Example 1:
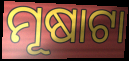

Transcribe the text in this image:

ମୂଷାଟା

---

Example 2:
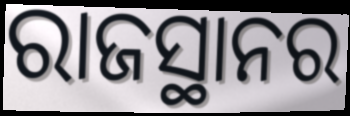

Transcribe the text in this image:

ରାଜସ୍ଥାନର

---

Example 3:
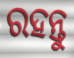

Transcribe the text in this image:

ରହନ୍ତୁ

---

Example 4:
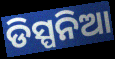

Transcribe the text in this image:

ଡିସ୍ପନିଆ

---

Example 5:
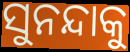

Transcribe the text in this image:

ସୁନନ୍ଦାକୁ